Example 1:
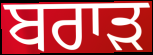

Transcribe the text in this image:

ਬਰਾਡ਼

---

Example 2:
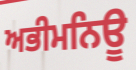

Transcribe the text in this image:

ਅਭੀਮਨਿਊ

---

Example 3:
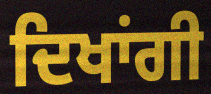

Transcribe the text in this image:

ਦਿਖਾਂਗੀ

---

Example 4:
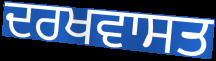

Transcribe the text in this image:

ਦਰਖਵਾਸਤ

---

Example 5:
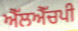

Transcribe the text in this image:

ਐੱਲਐੱਚਪੀ